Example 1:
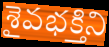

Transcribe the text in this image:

శైవభక్తిని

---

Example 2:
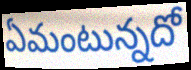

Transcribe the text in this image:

ఏమంటున్నదో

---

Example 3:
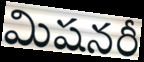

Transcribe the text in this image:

మిషనరీ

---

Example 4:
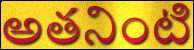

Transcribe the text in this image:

అతనింటి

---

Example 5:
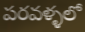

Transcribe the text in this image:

పరవళ్ళలో